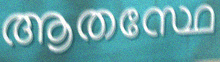
ആതസ്ഥേ